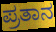
ಪ್ರತಾನ